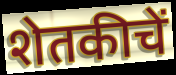
शेतकीचें